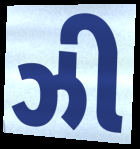
ઝી